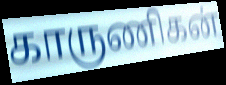
காருணிகன்